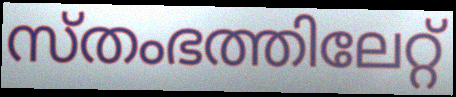
സ്തംഭത്തിലേറ്റ്